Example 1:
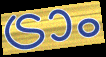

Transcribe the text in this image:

ട്രാം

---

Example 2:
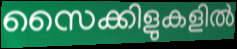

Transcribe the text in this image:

സൈക്കിളുകളിൽ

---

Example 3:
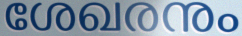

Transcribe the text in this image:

ശേഖരനും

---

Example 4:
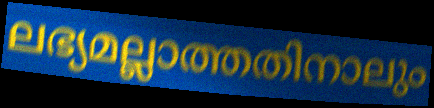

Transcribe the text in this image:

ലഭ്യമല്ലാത്തതിനാലും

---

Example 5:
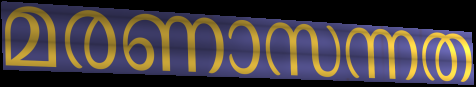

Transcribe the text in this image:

മരണാസന്നത